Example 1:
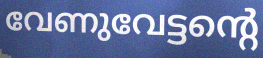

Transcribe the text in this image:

വേണുവേട്ടന്റെ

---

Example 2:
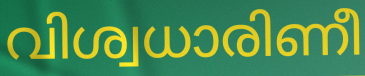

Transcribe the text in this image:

വിശ്വധാരിണീ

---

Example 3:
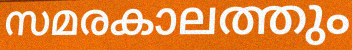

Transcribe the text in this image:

സമരകാലത്തും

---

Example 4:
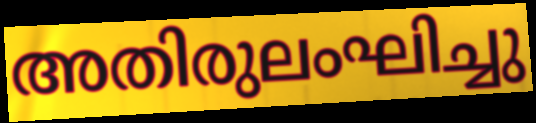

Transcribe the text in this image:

അതിരുലംഘിച്ചു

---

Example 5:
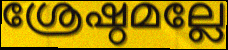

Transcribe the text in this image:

ശ്രേഷ്ഠമല്ലേ